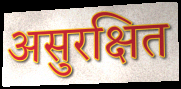
असुरक्षित